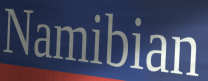
Namibian